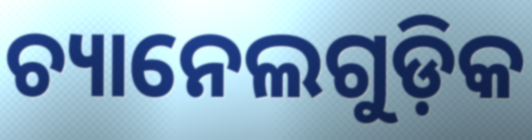
ଚ୍ୟାନେଲଗୁଡ଼ିକ